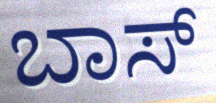
ಬಾಸ್